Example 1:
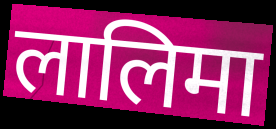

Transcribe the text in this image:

लालिमा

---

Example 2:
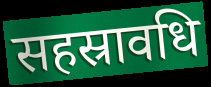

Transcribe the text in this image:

सहस्रावधि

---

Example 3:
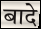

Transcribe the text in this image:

बादे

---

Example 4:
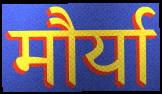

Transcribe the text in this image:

मौर्या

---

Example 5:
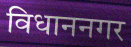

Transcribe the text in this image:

विधाननगर